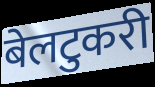
बेलटुकरी